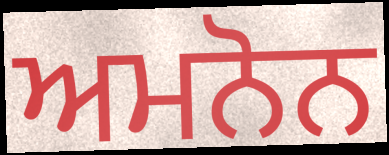
ਅਮਨੋਨ